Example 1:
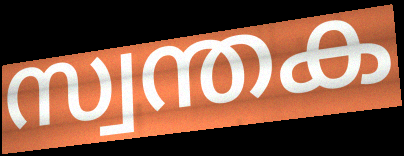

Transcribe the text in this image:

സ്വന്തക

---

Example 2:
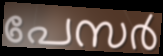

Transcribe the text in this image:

പേസർ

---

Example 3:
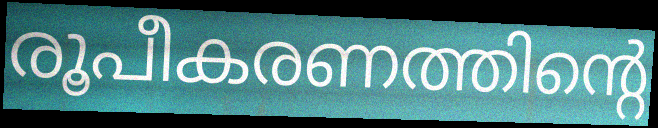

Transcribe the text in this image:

രൂപീകരണത്തിന്റെ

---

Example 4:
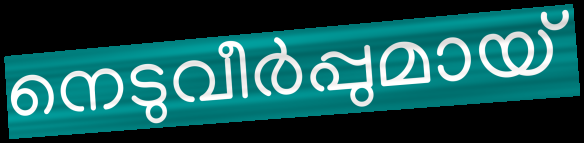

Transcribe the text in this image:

നെടുവീർപ്പുമായ്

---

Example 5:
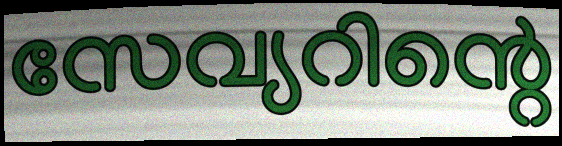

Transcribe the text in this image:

സേവ്യറിന്റെ